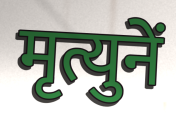
मृत्युनें